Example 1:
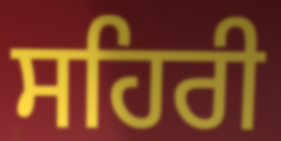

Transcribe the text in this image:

ਸਹਿਰੀ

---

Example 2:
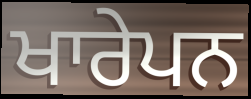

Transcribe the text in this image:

ਖਾਰੇਪਨ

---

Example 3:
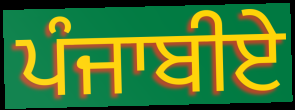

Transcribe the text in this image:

ਪੰਜਾਬੀਏ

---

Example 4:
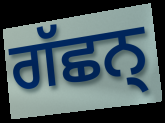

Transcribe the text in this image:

ਗੱਛਨ੍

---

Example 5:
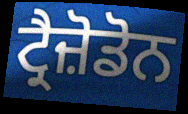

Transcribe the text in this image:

ਟ੍ਰੈਜ਼ੋਡੋਨ